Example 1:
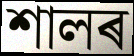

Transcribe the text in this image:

শালৰ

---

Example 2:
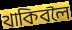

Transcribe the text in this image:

থাকিবলৈ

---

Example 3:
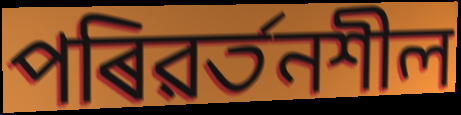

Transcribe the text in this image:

পৰিৱৰ্তনশীল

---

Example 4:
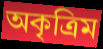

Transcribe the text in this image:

অকৃত্ৰিম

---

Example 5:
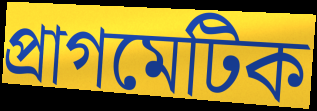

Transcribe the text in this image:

প্ৰাগমেটিক